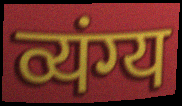
व्‍यंग्‍य